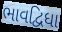
ભાવદ્વિધા